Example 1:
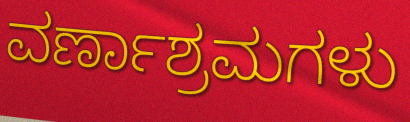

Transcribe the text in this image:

ವರ್ಣಾಶ್ರಮಗಳು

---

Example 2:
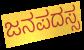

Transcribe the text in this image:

ಜನಪದಸ್ಸ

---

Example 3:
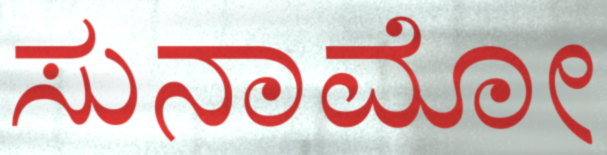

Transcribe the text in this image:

ಸುನಾಮೋ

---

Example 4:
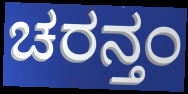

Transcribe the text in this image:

ಚರನ್ತಂ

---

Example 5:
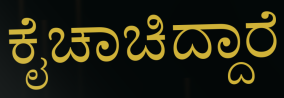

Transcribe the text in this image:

ಕೈಚಾಚಿದ್ದಾರೆ